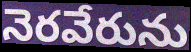
నెరవేరును